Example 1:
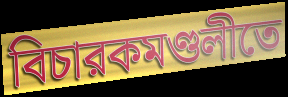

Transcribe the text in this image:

বিচারকমণ্ডলীতে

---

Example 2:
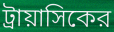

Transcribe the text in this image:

ট্রায়াসিকের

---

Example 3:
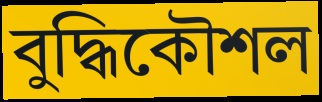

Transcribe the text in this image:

বুদ্ধিকৌশল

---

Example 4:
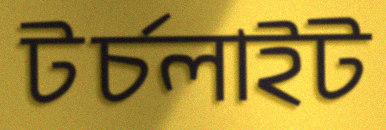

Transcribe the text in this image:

টর্চলাইট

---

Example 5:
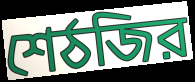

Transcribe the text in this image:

শেঠজির